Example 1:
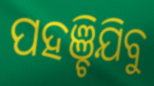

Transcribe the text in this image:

ପହଞ୍ଚିଯିବୁ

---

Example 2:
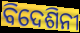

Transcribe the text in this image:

ବିଦେଶିନୀ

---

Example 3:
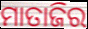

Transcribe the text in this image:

ମାତାଜିର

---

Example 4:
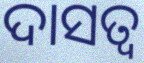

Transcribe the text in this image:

ଦାସତ୍ୱ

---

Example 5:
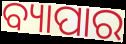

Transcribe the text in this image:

ବ୍ୟାପାର